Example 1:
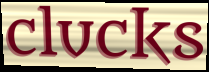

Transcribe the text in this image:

clucks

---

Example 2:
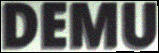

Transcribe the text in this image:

DEMU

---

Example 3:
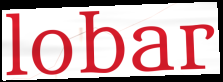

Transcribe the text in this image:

lobar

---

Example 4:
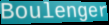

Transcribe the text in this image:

Boulenger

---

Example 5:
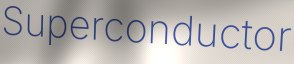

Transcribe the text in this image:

Superconductor